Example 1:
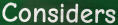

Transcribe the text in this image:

Considers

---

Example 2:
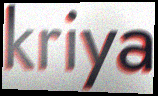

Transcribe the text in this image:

kriya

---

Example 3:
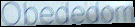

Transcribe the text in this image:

Obededom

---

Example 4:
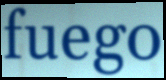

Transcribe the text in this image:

fuego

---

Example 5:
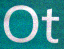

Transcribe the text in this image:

Ot